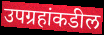
उपग्रहांकडील